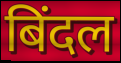
बिंदल